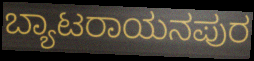
ಬ್ಯಾಟರಾಯನಪುರ